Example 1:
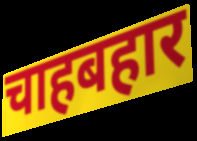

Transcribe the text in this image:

चाहबहार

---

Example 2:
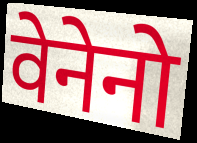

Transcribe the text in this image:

वेनेनो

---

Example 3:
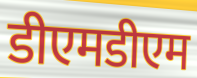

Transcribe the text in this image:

डीएमडीएम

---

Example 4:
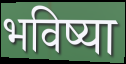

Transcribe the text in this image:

भविष्या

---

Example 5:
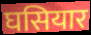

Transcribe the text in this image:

घसियार